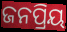
ଜନପ୍ରିୟ